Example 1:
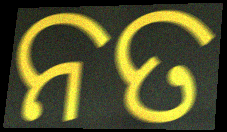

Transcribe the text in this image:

ନତ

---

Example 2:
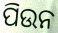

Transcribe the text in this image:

ପିଉନ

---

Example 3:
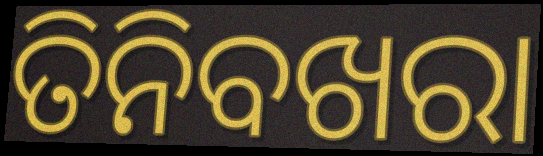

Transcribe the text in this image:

ତିନିବଖରା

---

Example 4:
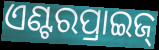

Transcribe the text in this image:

ଏଣ୍ଟରପ୍ରାଇଜ୍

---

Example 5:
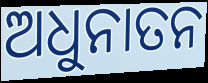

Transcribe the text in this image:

ଅଧୁନାତନ